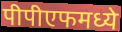
पीपीएफमध्ये